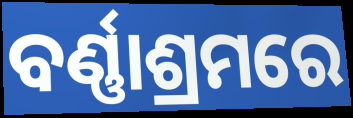
ବର୍ଣ୍ଣାଶ୍ରମରେ